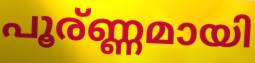
പൂര്ണ്ണമായി